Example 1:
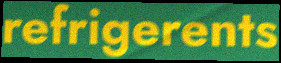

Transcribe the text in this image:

refrigerents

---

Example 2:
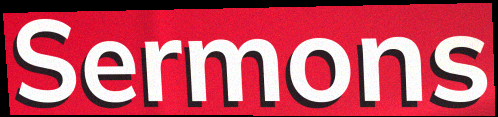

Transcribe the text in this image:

Sermons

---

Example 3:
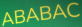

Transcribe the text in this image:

ABABAC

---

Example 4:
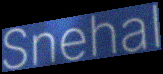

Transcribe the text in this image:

Snehal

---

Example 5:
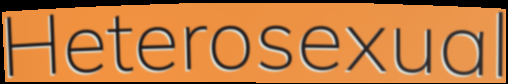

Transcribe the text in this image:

Heterosexual